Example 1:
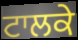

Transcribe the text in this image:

ਟਾਲਕੇ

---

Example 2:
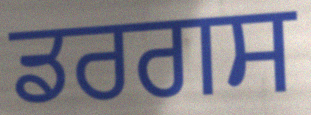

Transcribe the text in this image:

ਡਰਗਸ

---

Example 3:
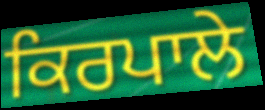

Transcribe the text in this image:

ਕਿਰਪਾਲੇ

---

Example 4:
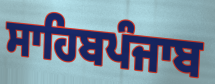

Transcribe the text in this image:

ਸਾਹਿਬਪੰਜਾਬ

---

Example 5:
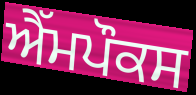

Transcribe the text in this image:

ਐੱਮਪੌਕਸ